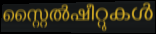
സ്റ്റൈൽഷീറ്റുകൾ